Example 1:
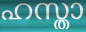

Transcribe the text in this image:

ഹസ്താ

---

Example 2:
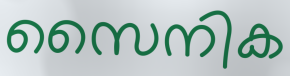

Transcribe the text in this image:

സൈനിക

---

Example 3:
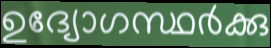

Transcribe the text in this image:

ഉദ്യോഗസ്ഥർക്കു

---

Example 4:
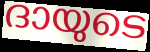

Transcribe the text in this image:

ദായുടെ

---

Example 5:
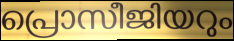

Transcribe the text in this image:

പ്രൊസീജിയറും